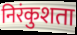
निरंकुशता